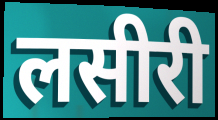
लसीरी